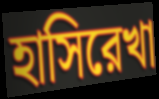
হাসিরেখা